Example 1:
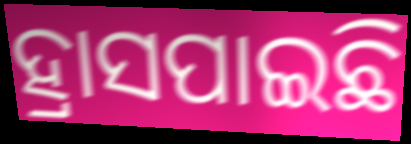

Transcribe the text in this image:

ହ୍ରାସପାଇଛି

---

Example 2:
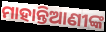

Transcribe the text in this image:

ମାହାନ୍ତିଆଣୀଙ୍କ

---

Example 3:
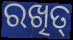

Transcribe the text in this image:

ରଖିତ୍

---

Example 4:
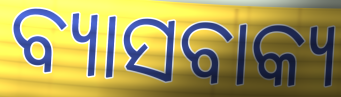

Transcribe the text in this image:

ବ୍ୟାସବାକ୍ୟ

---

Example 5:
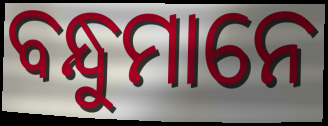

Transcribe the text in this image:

ବନ୍ଧୁମାନେ